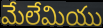
మేలేమియు